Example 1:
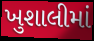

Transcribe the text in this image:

ખુશાલીમાં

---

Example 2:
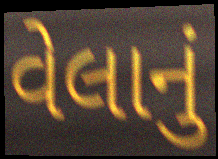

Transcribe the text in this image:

વેલાનું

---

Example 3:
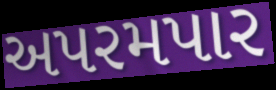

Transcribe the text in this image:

અપરમપાર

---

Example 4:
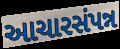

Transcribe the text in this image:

આચારસંપન્ન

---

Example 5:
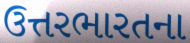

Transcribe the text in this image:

ઉત્તરભારતના